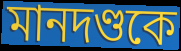
মানদণ্ডকে